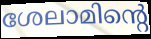
ശേലാമിന്റെ